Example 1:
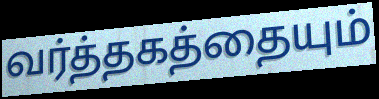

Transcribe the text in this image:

வர்த்தகத்தையும்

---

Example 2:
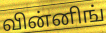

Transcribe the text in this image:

வின்னிங்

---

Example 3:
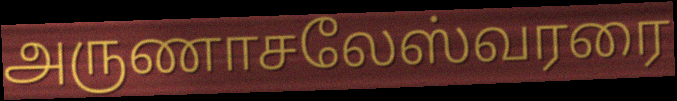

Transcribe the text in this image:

அருணாசலேஸ்வரரை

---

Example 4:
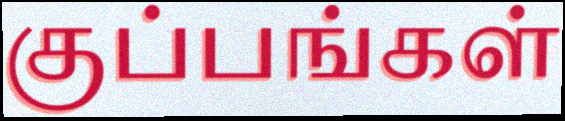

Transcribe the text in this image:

குப்பங்கள்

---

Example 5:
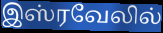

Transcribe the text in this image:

இஸ்ரவேலில்